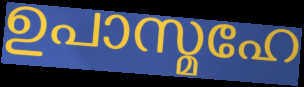
ഉപാസ്മഹേ